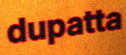
dupatta